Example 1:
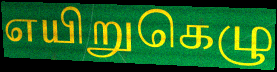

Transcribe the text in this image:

எயிறுகெழு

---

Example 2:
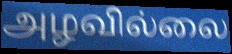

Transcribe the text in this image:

அழவில்லை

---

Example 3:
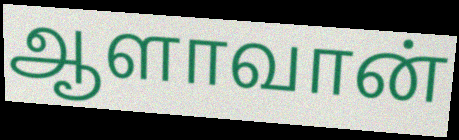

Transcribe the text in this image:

ஆளாவான்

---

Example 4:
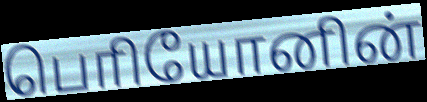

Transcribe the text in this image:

பெரியோனின்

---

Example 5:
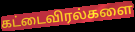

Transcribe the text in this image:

கட்டைவிரல்களை